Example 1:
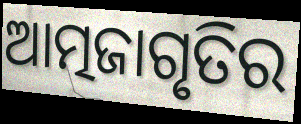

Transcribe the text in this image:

ଆତ୍ମଜାଗୃତିର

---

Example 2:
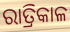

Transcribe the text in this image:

ରାତ୍ରିକାଳ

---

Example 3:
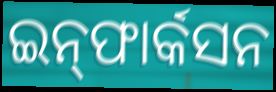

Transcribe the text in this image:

ଇନ୍‌ଫାର୍କସନ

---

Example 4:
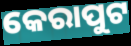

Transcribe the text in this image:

କେରାପୁଟ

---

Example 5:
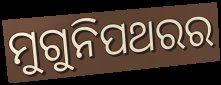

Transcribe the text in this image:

ମୁଗୁନିପଥରର